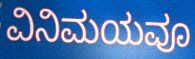
ವಿನಿಮಯವೂ